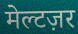
मेल्टज़र